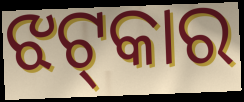
ଝଟ୍‍କାର